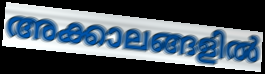
അക്കാലങ്ങളിൽ